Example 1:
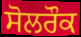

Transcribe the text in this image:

ਸੋਲਰੌਕ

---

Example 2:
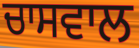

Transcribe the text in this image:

ਚਾਸਵਾਲ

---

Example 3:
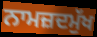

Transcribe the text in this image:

ਨਾਮਜ਼ਦਮੁੱਖ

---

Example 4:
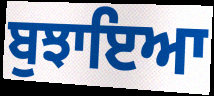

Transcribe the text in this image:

ਬੁਝਾਇਆ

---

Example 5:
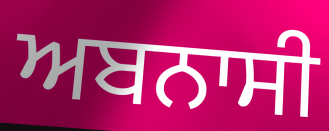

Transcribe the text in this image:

ਅਬਨਾਸੀ